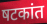
षटकांत